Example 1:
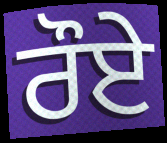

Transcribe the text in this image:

ਰੌਏ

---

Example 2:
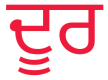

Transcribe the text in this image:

ਦੂਰ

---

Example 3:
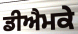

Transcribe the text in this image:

ਡੀਐਮਕੇ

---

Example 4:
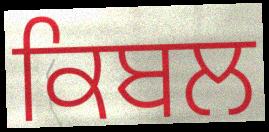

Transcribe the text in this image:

ਕਿਬਲ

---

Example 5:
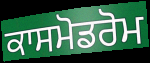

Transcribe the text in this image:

ਕਾਸਮੋਡਰੋਮ